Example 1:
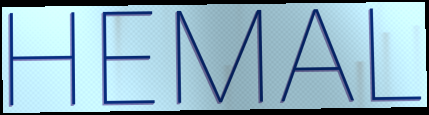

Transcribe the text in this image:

HEMAL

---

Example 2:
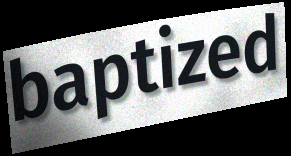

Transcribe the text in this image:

baptized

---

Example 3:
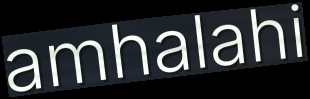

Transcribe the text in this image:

amhalahi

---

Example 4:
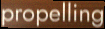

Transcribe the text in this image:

propelling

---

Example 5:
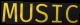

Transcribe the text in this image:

MUSIC